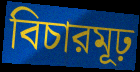
বিচারমূঢ়